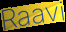
Raavi